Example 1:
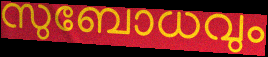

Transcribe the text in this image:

സുബോധവും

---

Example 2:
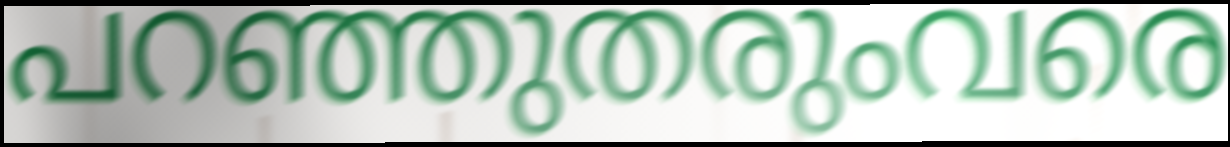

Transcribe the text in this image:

പറഞ്ഞുതരുംവരെ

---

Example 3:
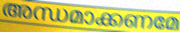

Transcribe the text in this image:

അന്ധമാക്കണമേ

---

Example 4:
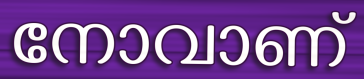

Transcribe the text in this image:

നോവാണ്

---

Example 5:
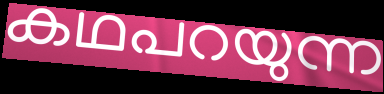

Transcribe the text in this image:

കഥപറയുന്ന